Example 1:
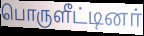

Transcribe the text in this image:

பொருளீட்டினர்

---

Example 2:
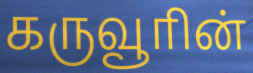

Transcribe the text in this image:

கருவூரின்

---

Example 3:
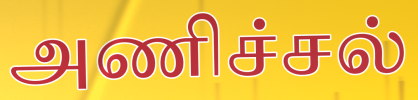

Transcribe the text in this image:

அணிச்சல்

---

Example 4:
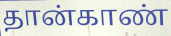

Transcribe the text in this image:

தான்காண்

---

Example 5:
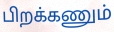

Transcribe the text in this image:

பிறக்கணும்